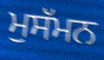
ਮੁਸੱਮਨ